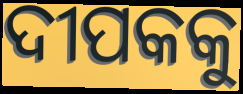
ଦୀପକକୁ